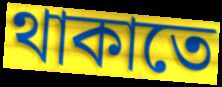
থাকাতে